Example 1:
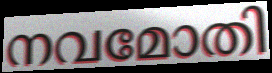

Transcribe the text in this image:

നവമോതി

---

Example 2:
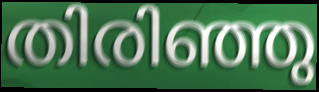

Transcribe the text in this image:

തിരിഞ്ഞു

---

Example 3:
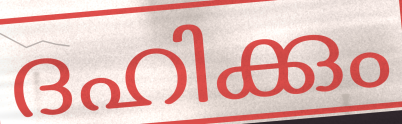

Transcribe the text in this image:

ദഹിക്കും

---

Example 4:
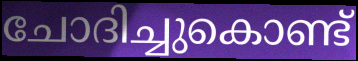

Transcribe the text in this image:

ചോദിച്ചുകൊണ്ട്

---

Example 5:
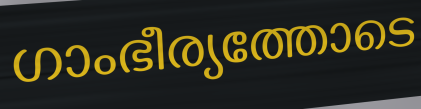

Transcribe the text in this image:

ഗാംഭീര്യത്തോടെ